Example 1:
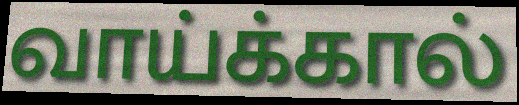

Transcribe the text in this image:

வாய்க்கால்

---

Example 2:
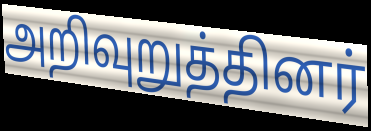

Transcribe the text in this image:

அறிவுறுத்தினர்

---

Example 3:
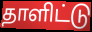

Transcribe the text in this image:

தாளிட்டு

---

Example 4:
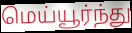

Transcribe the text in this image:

மெய்யூர்ந்து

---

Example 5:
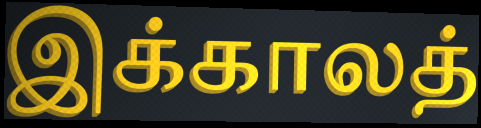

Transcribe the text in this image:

இக்காலத்